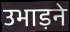
उभाड़ने